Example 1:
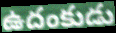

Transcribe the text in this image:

ఉదంకుడు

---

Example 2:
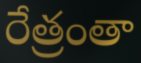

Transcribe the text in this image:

రేత్రంతా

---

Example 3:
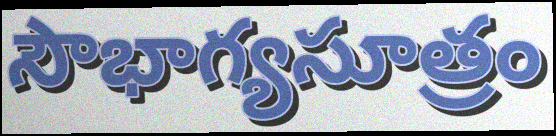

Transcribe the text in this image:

సౌభాగ్యసూత్రం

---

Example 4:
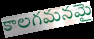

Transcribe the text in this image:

కాలగమనమై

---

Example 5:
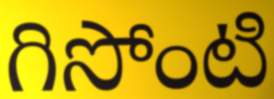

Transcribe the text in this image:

గిసోంటి